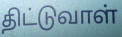
திட்டுவாள்